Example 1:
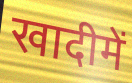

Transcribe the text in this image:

खादीमें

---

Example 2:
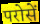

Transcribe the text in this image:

परोसें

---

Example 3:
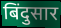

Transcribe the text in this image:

बिंदुसार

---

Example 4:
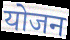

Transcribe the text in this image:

योजन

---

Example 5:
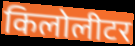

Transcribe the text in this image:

किलोलीटर